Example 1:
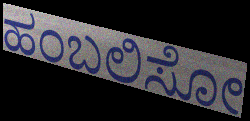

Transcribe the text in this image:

ಹಂಬಲಿಸೋ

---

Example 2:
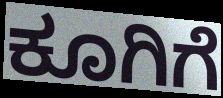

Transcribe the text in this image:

ಕೂಗಿಗೆ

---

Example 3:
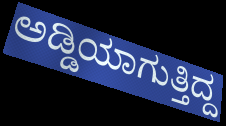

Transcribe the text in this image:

ಅಡ್ಡಿಯಾಗುತ್ತಿದ್ದ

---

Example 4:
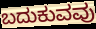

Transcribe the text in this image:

ಬದುಕುವವು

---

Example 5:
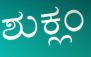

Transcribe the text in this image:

ಶುಕ್ಲಂ